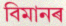
বিমানৰ